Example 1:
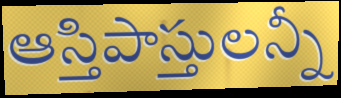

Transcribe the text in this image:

ఆస్తిపాస్తులన్నీ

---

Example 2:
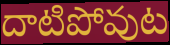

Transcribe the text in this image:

దాటిపోవుట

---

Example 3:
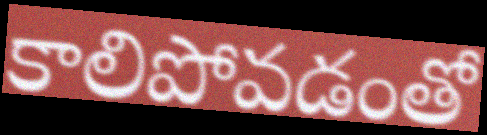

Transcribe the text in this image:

కాలిపోవడంతో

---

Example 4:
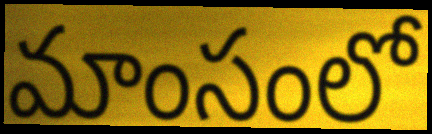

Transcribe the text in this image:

మాంసంలో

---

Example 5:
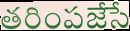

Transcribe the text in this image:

తరింపజేసే